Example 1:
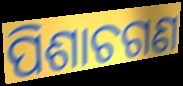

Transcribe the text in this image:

ପିଶାଚଗଣ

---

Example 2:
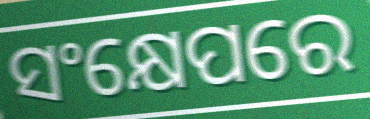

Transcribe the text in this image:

ସଂକ୍ଷେପରେ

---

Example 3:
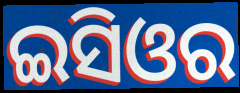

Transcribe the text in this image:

ଇସିଓର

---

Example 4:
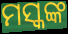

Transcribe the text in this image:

ମସ୍କଙ୍କ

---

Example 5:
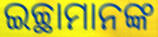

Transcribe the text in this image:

ଇଚ୍ଛାମାନଙ୍କ